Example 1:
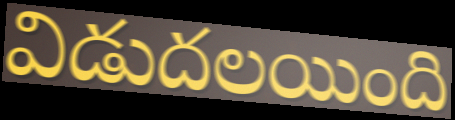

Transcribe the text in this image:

విడుదలయింది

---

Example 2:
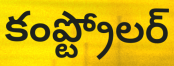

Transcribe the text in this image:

కంప్ట్రోలర్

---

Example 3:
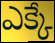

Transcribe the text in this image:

ఎక్కే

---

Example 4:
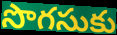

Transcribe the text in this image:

సొగసుకు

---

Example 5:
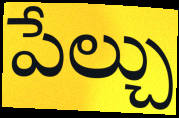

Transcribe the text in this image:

పేల్చు